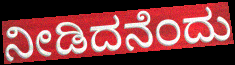
ನೀಡಿದನೆಂದು